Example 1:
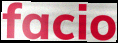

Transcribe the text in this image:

facio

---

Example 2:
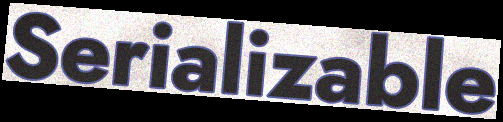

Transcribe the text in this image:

Serializable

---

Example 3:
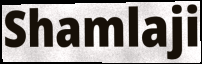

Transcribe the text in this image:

Shamlaji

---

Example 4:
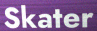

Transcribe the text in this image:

Skater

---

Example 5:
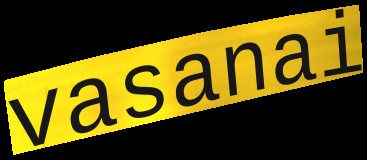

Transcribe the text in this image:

vasanai